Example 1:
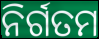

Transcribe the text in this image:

ନିର୍ଗତମ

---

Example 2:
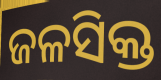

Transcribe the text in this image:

ଜଳସିକ୍ତ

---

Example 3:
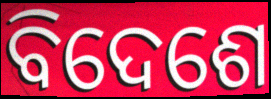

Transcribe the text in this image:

ବିଦେଶେ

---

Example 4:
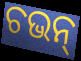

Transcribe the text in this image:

ଚଭନ୍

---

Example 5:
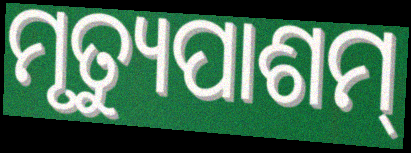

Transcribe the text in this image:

ମୃତ୍ୟୁପାଶମ୍